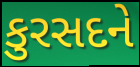
કુરસદને